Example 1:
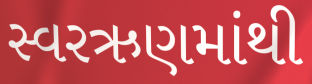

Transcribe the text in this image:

સ્વરઋણમાંથી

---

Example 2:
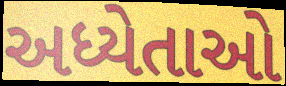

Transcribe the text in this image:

અધ્યેતાઓ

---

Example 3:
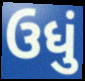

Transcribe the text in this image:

ઉધું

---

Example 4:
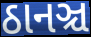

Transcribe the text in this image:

ઠાનઞ્ચ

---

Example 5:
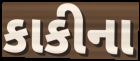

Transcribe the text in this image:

કાકીના